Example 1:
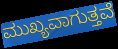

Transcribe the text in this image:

ಮುಖ್ಯವಾಗುತ್ತವೆ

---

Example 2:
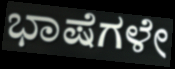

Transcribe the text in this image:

ಭಾಷೆಗಳೇ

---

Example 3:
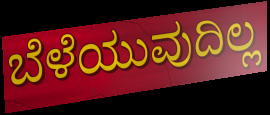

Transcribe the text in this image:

ಬೆಳೆಯುವುದಿಲ್ಲ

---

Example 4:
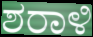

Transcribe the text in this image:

ಶರಾಳಿ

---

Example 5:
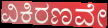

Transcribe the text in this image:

ವಿಕಿರಣವೇ